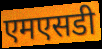
एमएसडी